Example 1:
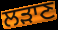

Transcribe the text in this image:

ਲੜਾਣ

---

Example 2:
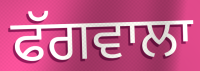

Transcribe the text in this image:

ਫੱਗਵਾਲਾ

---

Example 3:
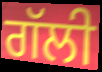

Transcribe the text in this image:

ਗੱਲੀ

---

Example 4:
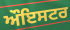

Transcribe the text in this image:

ਔਇਸਟਰ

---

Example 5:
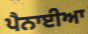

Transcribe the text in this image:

ਪੈਨਾਈਆ